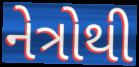
નેત્રોથી